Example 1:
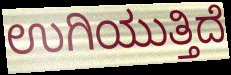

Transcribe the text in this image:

ಉಗಿಯುತ್ತಿದೆ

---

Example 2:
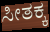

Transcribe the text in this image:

ಸೀತಕ್ಕ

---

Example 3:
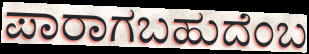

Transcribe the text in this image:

ಪಾರಾಗಬಹುದೆಂಬ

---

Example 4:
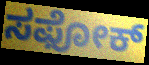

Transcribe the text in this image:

ಸಫೋಕ್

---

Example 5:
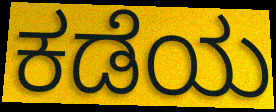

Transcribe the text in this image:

ಕಡೆಯ